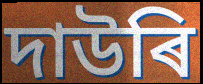
দাউৰি